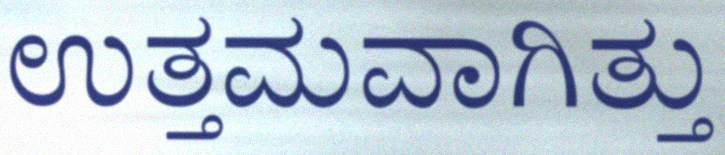
ಉತ್ತಮವಾಗಿತ್ತು